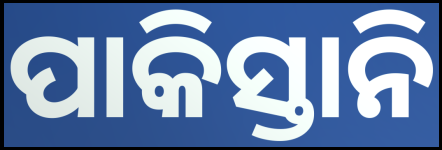
ପାକିସ୍ତାନି